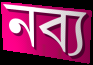
নব্য